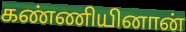
கண்ணியினான்